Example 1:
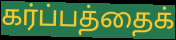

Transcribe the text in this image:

கர்ப்பத்தைக்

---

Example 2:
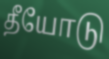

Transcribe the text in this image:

தீயோடு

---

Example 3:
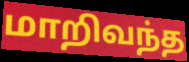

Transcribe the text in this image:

மாறிவந்த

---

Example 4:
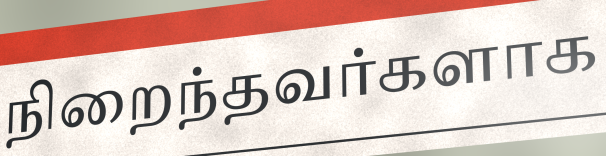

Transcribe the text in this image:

நிறைந்தவர்களாக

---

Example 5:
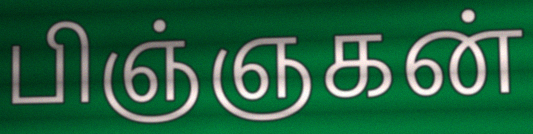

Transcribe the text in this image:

பிஞ்ஞகன்